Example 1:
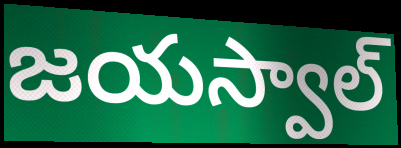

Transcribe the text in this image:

జయస్వాల్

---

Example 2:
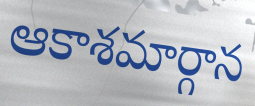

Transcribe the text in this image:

ఆకాశమార్గాన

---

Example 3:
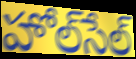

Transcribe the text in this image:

హోల్‌సేల్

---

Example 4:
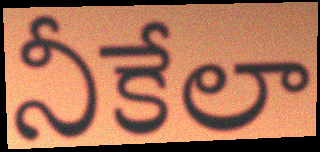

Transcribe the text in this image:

నీకేలా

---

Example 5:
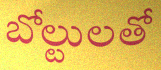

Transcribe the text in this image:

బోల్టులతో